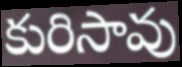
కురిసావు